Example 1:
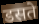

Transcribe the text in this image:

डसते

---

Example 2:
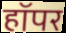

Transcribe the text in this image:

हॉपर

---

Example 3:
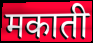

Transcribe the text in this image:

मकाती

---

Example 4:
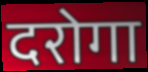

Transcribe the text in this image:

दरोगा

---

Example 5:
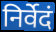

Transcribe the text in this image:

निर्वेदं